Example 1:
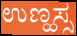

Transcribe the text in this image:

ಉಣ್ಹಸ್ಸ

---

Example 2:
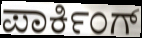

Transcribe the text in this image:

ಪಾರ್ಕಿಂಗ್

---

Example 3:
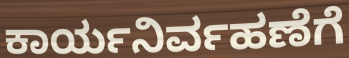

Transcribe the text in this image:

ಕಾರ್ಯನಿರ್ವಹಣೆಗೆ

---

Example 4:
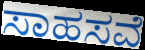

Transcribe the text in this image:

ಸಾಹಸವೆ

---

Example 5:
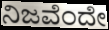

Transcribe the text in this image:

ನಿಜವೆಂದೇ